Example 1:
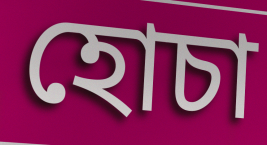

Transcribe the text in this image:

হোচা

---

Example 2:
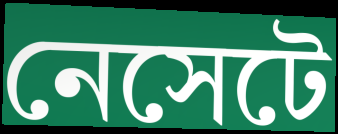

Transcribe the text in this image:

নেসেটে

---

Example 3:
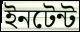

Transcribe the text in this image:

ইনটেন্ট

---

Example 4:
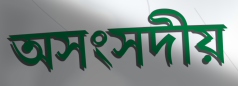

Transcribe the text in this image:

অসংসদীয়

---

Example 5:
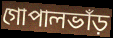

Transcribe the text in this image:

গোপালভাঁড়